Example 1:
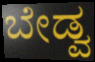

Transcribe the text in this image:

ಬೇಡ್ವ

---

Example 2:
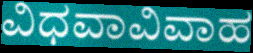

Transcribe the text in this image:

ವಿಧವಾವಿವಾಹ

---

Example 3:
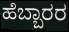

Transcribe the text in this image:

ಹೆಬ್ಬಾರರ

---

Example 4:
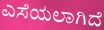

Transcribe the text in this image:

ಎಸೆಯಲಾಗಿದೆ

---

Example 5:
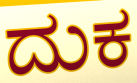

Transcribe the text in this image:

ದುಕ